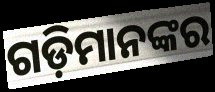
ଗଡ଼ିମାନଙ୍କର